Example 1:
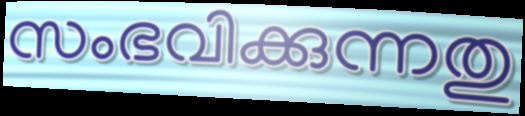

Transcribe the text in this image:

സംഭവിക്കുന്നതു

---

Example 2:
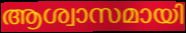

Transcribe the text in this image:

ആശ്വാസമായി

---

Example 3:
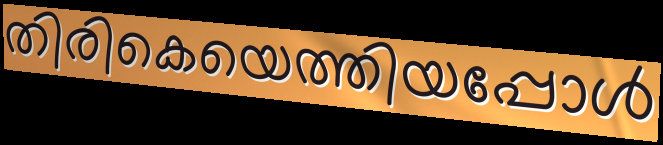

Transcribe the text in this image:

തിരികെയെത്തിയപ്പോൾ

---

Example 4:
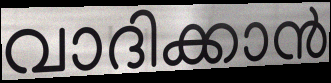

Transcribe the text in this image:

വാദിക്കാൻ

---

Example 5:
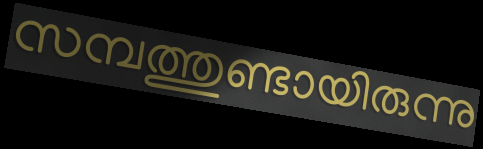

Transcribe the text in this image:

സമ്പത്തുണ്ടായിരുന്നു